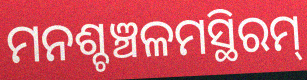
ମନଶ୍ଚଞ୍ଚଳମସ୍ଥିରମ୍